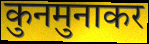
कुनमुनाकर